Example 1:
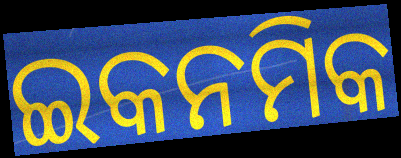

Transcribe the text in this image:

ଇକନମିକ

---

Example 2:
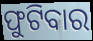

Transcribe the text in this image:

ଫୁଟିବାର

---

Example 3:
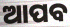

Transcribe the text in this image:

ଆପବ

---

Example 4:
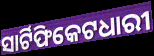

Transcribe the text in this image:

ସାର୍ଟିଫିକେଟଧାରୀ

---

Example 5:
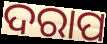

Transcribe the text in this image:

ଦରାପ